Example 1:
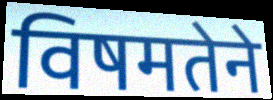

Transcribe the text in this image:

विषमतेने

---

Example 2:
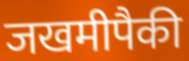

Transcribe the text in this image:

जखमीपैकी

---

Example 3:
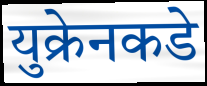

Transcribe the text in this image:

युक्रेनकडे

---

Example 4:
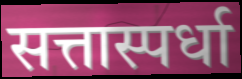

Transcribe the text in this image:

सत्तास्पर्धा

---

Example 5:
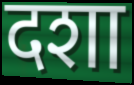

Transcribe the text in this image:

दशा